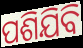
ପଶିଯିବି